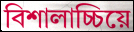
বিশালাচ্চিয়ে